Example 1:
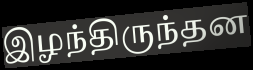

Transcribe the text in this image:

இழந்திருந்தன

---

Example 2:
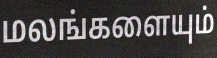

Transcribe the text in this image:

மலங்களையும்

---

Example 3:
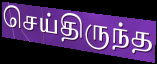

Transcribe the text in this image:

செய்திருந்த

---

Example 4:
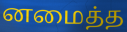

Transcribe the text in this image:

னமைத்த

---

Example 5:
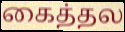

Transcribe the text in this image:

கைத்தல